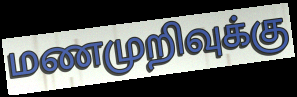
மணமுறிவுக்கு